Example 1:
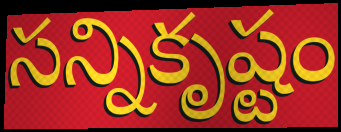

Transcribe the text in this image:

సన్నికృష్టం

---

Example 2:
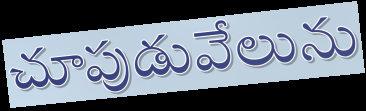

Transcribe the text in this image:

చూపుడువేలును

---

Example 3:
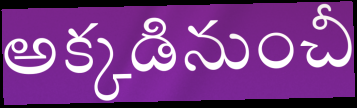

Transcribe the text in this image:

అక్కడినుంచీ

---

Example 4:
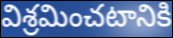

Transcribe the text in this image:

విశ్రమించటానికి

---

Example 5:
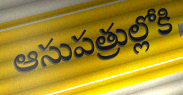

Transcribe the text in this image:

ఆసుపత్రుల్లోకి